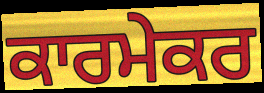
ਕਾਰਮੇਕਰ